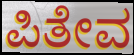
ಪಿತೇವ